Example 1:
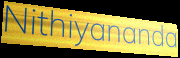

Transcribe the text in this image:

Nithiyananda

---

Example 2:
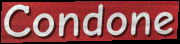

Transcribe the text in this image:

Condone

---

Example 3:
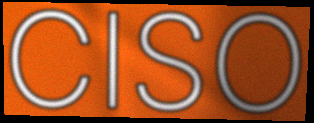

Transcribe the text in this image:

CISO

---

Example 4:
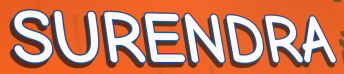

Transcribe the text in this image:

SURENDRA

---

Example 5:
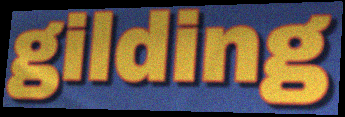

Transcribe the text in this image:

gilding